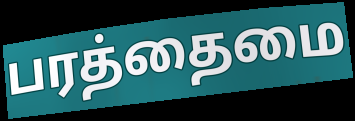
பரத்தைமை